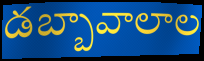
డబ్బావాలాల